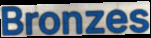
Bronzes